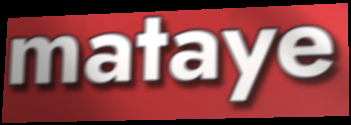
mataye